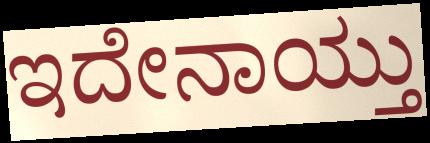
ಇದೇನಾಯ್ತು